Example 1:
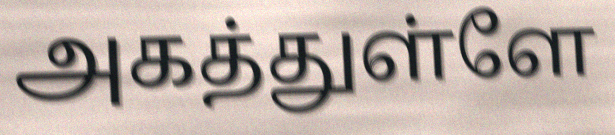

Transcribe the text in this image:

அகத்துள்ளே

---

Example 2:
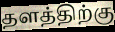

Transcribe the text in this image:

தளத்திற்கு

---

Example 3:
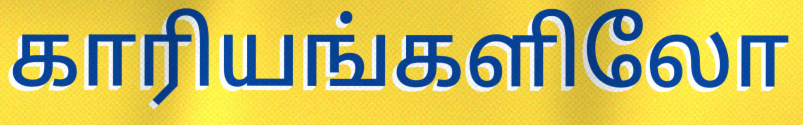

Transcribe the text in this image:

காரியங்களிலோ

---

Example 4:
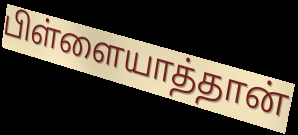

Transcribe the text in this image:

பிள்ளையாத்தான்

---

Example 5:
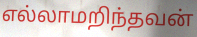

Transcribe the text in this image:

எல்லாமறிந்தவன்